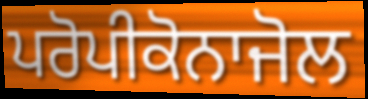
ਪਰੋਪੀਕੋਨਾਜੋਲ